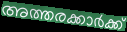
അത്തരക്കാർക്ക്